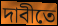
দাবীতে